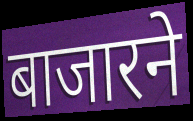
बाजारने